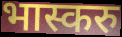
भास्करु